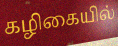
கழிகையில்